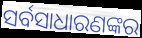
ସର୍ବସାଧାରଣଙ୍କର